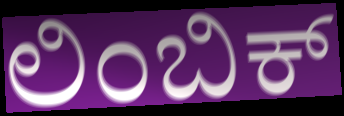
ಲಿಂಬಿಕ್